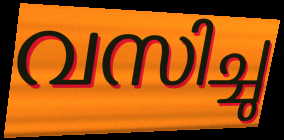
വസിച്ചു